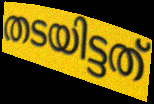
തടയിട്ടത്